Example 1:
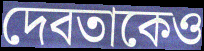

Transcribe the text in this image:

দেবতাকেও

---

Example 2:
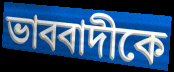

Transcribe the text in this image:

ভাববাদীকে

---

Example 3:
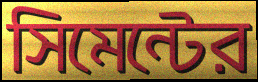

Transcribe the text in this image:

সিমেন্টের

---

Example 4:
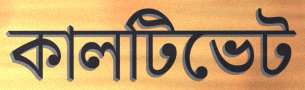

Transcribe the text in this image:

কালটিভেট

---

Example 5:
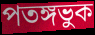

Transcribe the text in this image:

পতঙ্গভুক